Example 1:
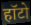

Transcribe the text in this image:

हॉटो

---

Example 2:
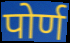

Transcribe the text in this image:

पोर्ण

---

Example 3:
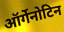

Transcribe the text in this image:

ऑर्गेनोटिन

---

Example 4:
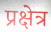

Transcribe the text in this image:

प्रक्षेत्र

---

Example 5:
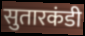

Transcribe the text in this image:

सुतारकंडी